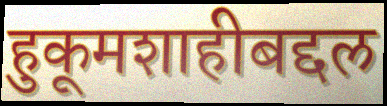
हुकूमशाहीबद्दल